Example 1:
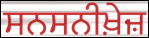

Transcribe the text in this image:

ਸਨਸਨੀਖ਼ੇਜ਼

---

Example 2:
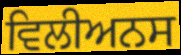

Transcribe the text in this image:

ਵਿਲੀਅਨਸ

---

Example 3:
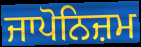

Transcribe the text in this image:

ਜਾਪੋਨਿਜ਼ਮ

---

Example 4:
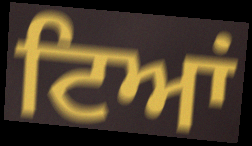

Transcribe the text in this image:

ਟਿਆਂ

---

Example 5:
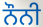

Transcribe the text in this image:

ਨੌਨੀ